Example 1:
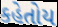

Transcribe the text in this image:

કહેતોય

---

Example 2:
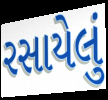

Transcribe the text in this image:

રસાયેલું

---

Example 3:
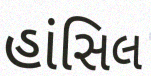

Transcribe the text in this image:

હાંસિલ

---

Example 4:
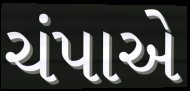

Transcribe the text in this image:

ચંપાએ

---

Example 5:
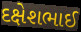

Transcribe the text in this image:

દક્ષેશભાઈ